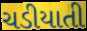
ચડીયાતી